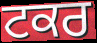
ਟਕਰ